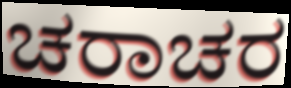
ಚರಾಚರ